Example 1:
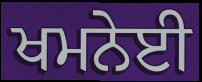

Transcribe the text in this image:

ਖਮਨੇਈ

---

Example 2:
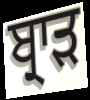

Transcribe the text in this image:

ਬ੍ਰਾੜ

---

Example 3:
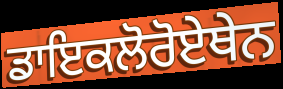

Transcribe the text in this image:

ਡਾਇਕਲੋਰੋਏਥੇਨ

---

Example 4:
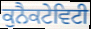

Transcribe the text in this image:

ਕੁਨੈਕਟੇਵਿਟੀ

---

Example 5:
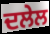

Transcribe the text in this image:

ਦਲੇਲ